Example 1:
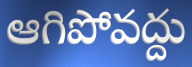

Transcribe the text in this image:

ఆగిపోవద్దు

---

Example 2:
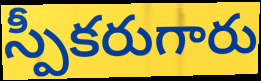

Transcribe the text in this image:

స్పీకరుగారు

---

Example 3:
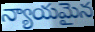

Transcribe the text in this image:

న్యాయమైన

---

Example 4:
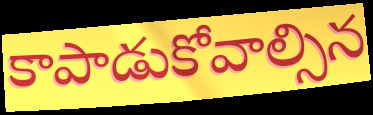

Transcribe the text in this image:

కాపాడుకోవాల్సిన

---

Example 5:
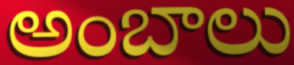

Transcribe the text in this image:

అంబాలు